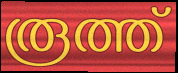
രൂത്ത്